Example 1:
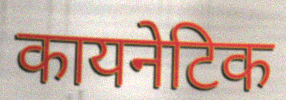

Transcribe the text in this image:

कायनेटिक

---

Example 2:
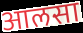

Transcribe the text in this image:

आलसा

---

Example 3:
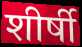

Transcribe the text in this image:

शीर्षी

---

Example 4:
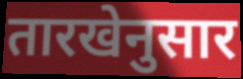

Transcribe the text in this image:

तारखेनुसार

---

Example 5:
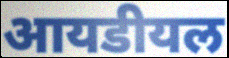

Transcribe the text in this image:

आयडीयल